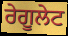
ਰੇਗੂਲੇਟ